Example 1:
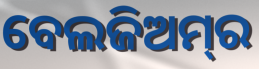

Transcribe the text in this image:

ବେଲଜିଅମ୍‌ର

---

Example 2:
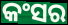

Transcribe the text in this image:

କଂସର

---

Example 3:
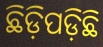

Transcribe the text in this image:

ଛିଡ଼ିପଡ଼ିଛି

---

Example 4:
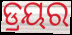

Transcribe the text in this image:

ଡ୍ରୟର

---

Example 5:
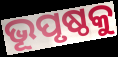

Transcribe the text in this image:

ଭୂପୃଷ୍ଠକୁ